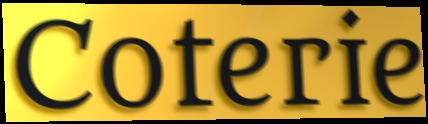
Coterie